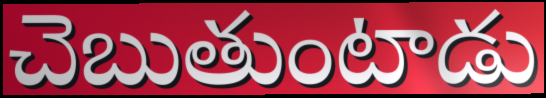
చెబుతుంటాడు